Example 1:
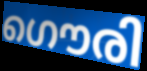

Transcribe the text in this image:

ഗൌരി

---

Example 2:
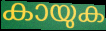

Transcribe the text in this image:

കായുക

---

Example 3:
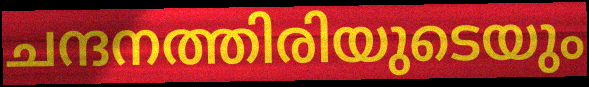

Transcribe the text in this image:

ചന്ദനത്തിരിയുടെയും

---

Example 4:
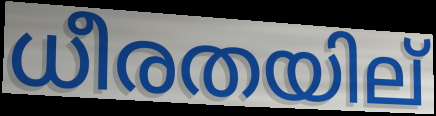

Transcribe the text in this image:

ധീരതയില്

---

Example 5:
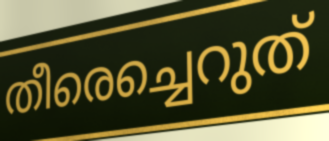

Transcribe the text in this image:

തീരെച്ചെറുത്